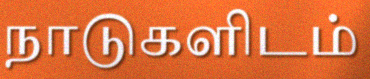
நாடுகளிடம்